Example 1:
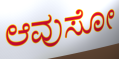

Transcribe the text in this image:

ಆವುಸೋ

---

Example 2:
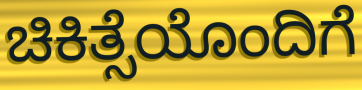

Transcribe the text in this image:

ಚಿಕಿತ್ಸೆಯೊಂದಿಗೆ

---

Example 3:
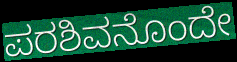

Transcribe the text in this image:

ಪರಶಿವನೊಂದೇ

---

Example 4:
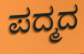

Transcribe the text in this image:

ಪದ್ಮದ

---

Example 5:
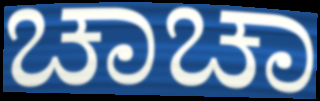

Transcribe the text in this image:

ಚಾಚಾ